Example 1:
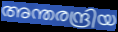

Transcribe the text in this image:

അന്തരന്ദ്രിയ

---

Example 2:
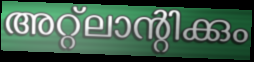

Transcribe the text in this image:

അറ്റ്ലാന്റിക്കും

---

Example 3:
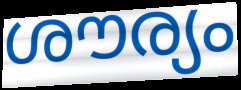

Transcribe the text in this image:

ശൗര്യം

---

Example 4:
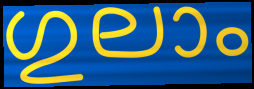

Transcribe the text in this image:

ഗുലാം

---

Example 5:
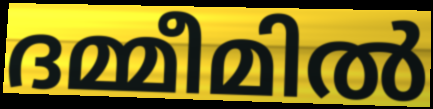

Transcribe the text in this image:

ദമ്മീമിൽ